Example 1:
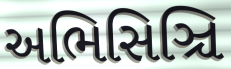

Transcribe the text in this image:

અભિસિઞ્ચિ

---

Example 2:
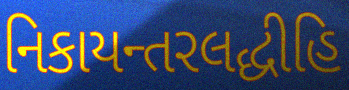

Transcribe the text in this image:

નિકાયન્તરલદ્ધીહિ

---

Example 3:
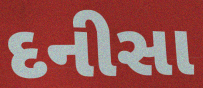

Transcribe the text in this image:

દનીસા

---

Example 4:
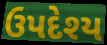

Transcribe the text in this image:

ઉપદેશ્ય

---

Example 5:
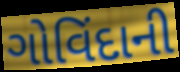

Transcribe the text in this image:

ગોવિંદાની